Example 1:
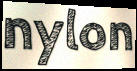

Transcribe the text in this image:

nylon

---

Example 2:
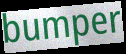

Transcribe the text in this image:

bumper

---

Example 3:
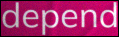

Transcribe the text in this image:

depend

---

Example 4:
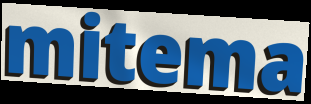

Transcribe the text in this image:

mitema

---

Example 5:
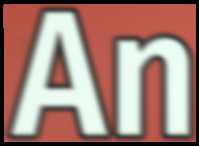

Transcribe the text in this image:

An